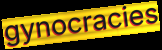
gynocracies